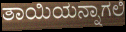
ತಾಯಿಯನ್ನಾಗಲಿ